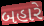
બહારે